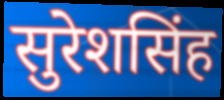
सुरेशसिंह